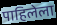
पाहिलेला